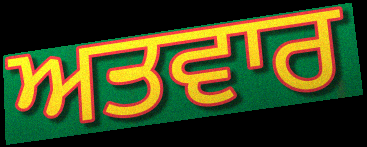
ਅਤਵਾਰ